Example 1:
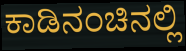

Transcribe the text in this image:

ಕಾಡಿನಂಚಿನಲ್ಲಿ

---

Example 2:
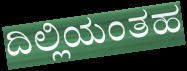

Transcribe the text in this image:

ದಿಲ್ಲಿಯಂತಹ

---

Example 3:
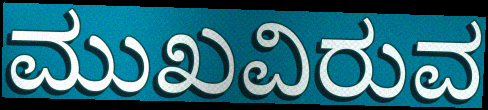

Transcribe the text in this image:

ಮುಖವಿರುವ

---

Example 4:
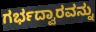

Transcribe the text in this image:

ಗರ್ಭದ್ವಾರವನ್ನು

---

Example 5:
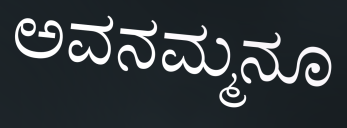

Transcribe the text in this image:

ಅವನಮ್ಮನೂ